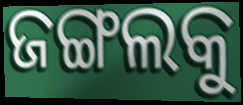
ଜଙ୍ଗଲକୁ